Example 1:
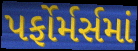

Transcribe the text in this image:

પર્ફોર્મર્સમાં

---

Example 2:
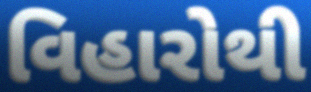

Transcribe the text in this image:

વિહારોથી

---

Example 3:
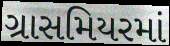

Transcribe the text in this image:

ગ્રાસમિયરમાં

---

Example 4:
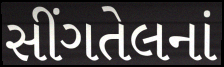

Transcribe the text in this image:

સીંગતેલનાં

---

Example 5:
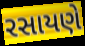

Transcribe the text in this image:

રસાયણે